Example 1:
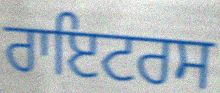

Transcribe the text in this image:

ਰਾਇਟਰਸ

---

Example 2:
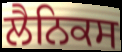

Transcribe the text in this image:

ਲੈਨਿਕਸ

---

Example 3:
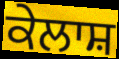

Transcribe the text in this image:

ਕੇਲਾਸ਼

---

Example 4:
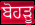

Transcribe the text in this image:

ਬੋਹੜੂ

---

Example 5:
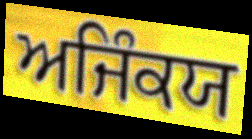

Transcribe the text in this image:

ਅਜਿੰਕਯ